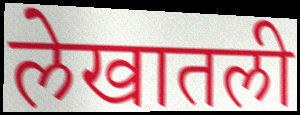
लेखातली